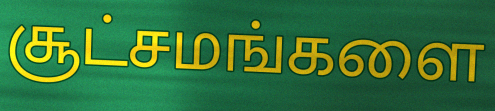
சூட்சமங்களை